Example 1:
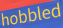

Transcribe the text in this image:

hobbled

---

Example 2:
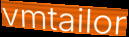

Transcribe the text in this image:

vmtailor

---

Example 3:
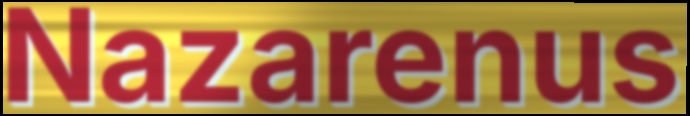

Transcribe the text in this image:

Nazarenus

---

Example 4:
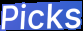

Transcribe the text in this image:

Picks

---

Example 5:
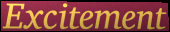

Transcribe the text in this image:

Excitement